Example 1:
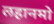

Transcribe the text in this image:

लहानमो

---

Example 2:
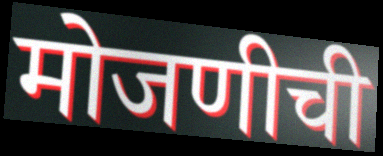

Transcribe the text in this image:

मोजणीची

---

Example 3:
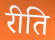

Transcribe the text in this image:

रीति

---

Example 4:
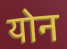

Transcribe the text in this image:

योन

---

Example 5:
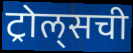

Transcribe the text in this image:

ट्रोल्सची